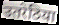
उतरेठिया